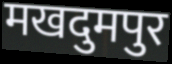
मखदुमपुर